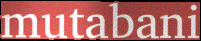
mutabani